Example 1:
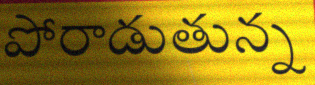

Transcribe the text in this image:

పోరాడుతున్న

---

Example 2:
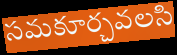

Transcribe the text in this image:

సమకూర్చవలసి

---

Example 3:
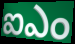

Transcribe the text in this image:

ఐఎం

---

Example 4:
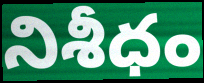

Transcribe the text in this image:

నిశీధం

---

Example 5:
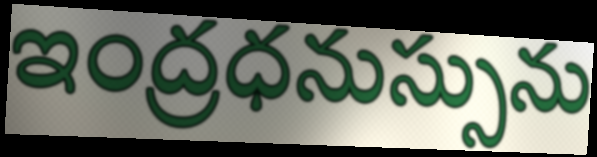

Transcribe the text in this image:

ఇంద్రధనుస్సును